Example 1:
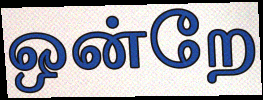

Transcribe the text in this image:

ஒன்றே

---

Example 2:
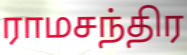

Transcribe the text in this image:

ராமசந்திர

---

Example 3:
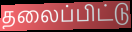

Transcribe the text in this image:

தலைப்பிட்டு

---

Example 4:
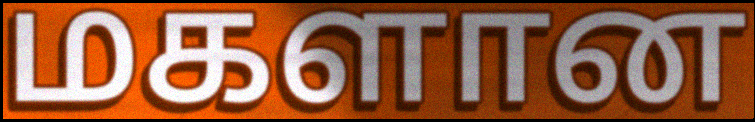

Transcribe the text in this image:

மகளான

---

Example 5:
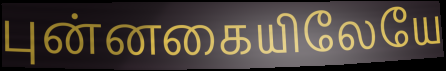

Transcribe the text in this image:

புன்னகையிலேயே